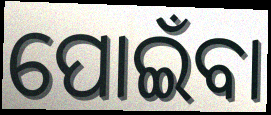
ପୋଇଁବା